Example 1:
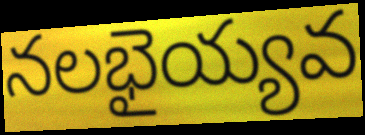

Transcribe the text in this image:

నలభైయ్యవ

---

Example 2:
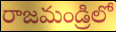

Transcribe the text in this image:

రాజమండ్రిలో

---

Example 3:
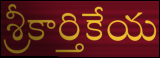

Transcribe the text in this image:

శ్రీకార్తికేయ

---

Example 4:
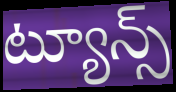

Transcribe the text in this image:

ట్యూన్స్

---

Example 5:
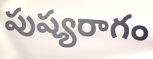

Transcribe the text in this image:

పుష్యరాగం